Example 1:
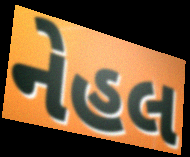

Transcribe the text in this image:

નેહલ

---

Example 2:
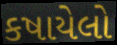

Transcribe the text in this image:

કષાયેલો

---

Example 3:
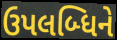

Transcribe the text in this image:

ઉપલબ્ધિને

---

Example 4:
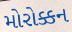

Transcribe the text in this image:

મોરોક્કન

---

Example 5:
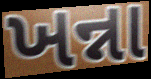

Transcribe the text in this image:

ખન્ના